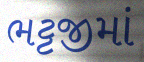
ભટ્ટજીમાં